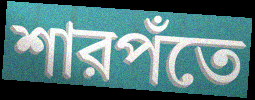
শারপঁতে